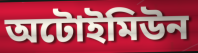
অটোইমিউন